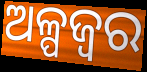
ଅଳ୍ପଜ୍ଵର